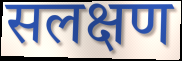
सलक्षण